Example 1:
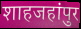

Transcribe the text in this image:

शाहजहांपुर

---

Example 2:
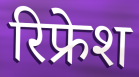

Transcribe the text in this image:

रिफ्रेश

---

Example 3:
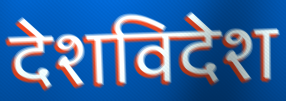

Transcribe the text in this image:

देशविदेश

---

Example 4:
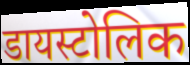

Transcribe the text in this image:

डायस्टोलिक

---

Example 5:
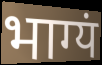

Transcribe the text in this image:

भाग्यं